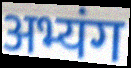
अभ्यंग